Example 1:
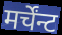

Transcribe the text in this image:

मर्चेंन्ट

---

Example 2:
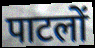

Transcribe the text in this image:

पाटलों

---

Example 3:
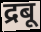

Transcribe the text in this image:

द्रबू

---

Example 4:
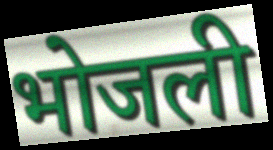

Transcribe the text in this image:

भोजली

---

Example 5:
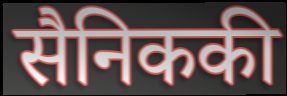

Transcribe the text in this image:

सैनिककी